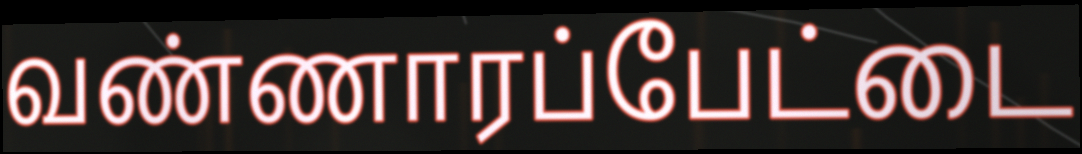
வண்ணாரப்பேட்டை